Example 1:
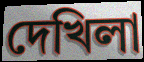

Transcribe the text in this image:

দেখিলা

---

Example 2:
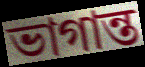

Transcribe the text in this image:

ভাগান্ত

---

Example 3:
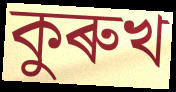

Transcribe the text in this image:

কুৰুখ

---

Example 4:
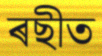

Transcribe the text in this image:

ৰছীত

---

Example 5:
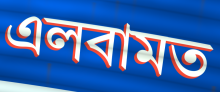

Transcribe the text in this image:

এলবামত